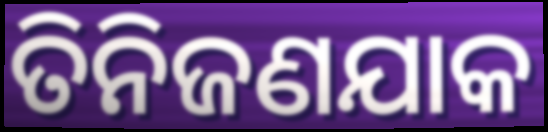
ତିନିଜଣଯାକ